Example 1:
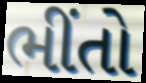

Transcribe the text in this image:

ભીંતો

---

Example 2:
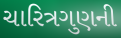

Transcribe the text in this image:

ચારિત્રગુણની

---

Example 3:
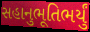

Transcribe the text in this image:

સહાનુભૂતિભર્યું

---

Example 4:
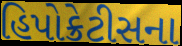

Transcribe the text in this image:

હિપોક્રેટીસના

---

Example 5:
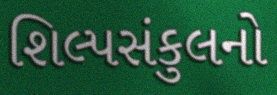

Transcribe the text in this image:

શિલ્પસંકુલનો